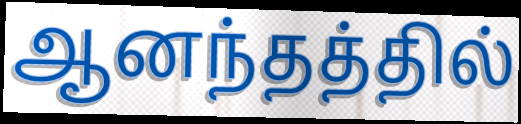
ஆனந்தத்தில்